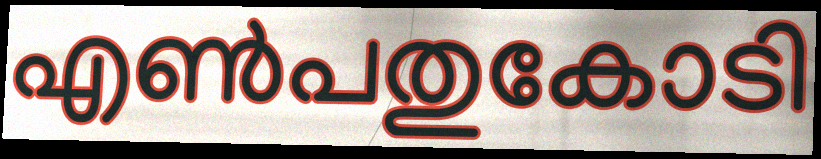
എൺപതുകോടി